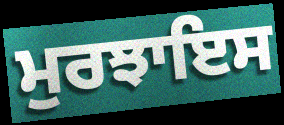
ਮੁਰਝਾਇਸ